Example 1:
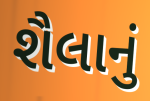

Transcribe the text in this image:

શૈલાનું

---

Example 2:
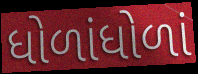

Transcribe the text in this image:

ધોળાંધોળાં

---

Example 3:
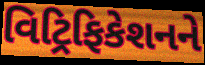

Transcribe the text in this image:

વિટ્રિફિકેશનને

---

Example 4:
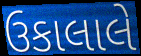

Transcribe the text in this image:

ઉકાલાલે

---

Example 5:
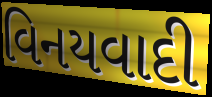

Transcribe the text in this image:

વિનયવાદી